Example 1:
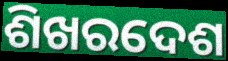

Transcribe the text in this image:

ଶିଖରଦେଶ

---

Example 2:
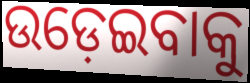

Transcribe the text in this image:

ଉଡ଼େଇବାକୁ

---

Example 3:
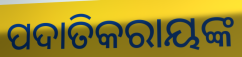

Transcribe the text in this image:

ପଦାତିକରାୟଙ୍କ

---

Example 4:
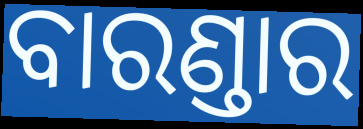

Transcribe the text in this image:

ବାରଣ୍ଡାର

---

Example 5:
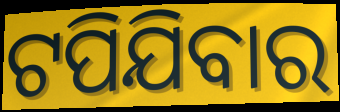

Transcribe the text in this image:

ଟପିଯିବାର